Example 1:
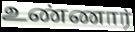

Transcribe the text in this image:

உண்ணார்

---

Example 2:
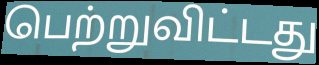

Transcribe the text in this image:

பெற்றுவிட்டது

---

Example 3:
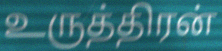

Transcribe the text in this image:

உருத்திரன்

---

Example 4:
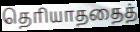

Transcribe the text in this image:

தெரியாததைத்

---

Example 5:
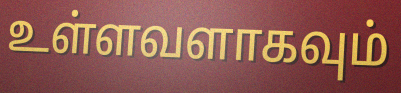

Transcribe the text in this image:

உள்ளவளாகவும்